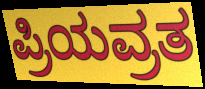
ಪ್ರಿಯವ್ರತ